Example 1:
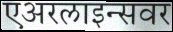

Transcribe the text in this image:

एअरलाइन्सवर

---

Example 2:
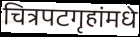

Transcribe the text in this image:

चित्रपटगृहांमधे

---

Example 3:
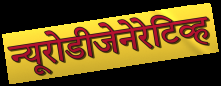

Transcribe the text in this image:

न्यूरोडीजेनेरेटिव्ह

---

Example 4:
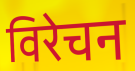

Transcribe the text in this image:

विरेचन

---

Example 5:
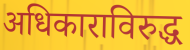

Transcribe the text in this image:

अधिकाराविरुद्ध